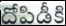
దోపిడీకి